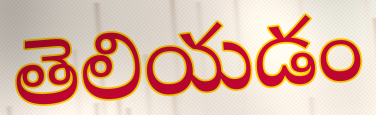
తెలియడం